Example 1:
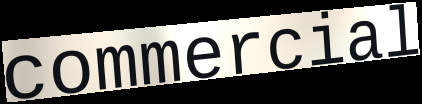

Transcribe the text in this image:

commercial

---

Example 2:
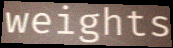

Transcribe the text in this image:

weights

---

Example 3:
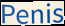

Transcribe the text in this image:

Penis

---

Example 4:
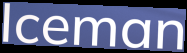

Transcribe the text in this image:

Iceman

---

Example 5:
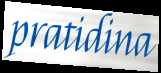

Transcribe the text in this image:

pratidina